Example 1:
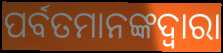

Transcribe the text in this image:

ପର୍ବତମାନଙ୍କଦ୍ଵାରା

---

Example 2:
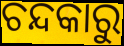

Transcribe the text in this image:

ଚନ୍ଦକାରୁ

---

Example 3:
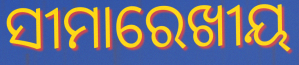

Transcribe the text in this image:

ସୀମାରେଖୀୟ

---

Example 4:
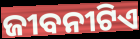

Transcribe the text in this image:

ଜୀବନୀଟିଏ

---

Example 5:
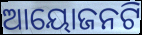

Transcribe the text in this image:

ଆୟୋଜନଟି